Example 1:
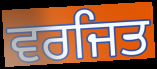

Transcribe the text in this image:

ਵਰਜਿਤ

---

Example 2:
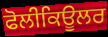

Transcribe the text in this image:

ਫੋਲੀਕਿਊਲਰ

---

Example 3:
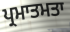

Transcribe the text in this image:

ਪ੍ਰਮਾਤਮਤਾ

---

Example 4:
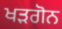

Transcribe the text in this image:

ਖੜਗੋਨ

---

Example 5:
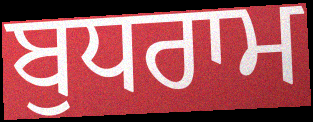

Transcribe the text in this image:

ਬੁਧਰਾਮ